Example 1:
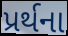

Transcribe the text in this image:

પ્રર્થના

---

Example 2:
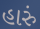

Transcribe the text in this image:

હારું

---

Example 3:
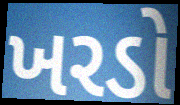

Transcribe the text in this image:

ખરડો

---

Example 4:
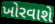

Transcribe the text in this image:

ખોરવાશે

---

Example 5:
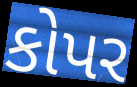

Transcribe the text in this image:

કોપર